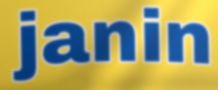
janin